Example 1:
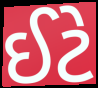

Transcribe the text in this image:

ઈટે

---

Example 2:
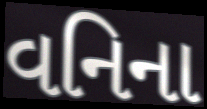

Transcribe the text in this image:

વનિના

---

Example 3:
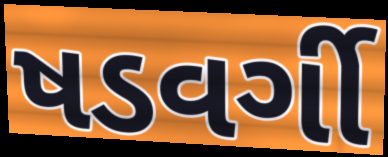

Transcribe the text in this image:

ષડવર્ગી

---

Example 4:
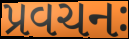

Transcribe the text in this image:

પ્રવચનઃ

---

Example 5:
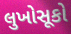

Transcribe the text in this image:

લુખોસૂકો